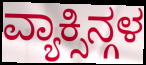
ವ್ಯಾಕ್ಸಿನ್ಗಳ